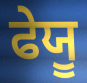
ਫੇਯੂ